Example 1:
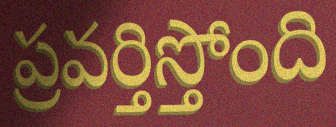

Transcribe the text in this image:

ప్రవర్తిస్తోంది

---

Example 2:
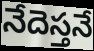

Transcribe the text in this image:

నేదెస్తనే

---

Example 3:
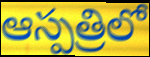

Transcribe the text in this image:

ఆస్పత్రిలో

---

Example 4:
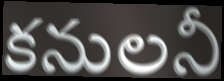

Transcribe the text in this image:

కనులనీ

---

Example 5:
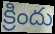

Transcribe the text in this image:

క్రిందు